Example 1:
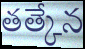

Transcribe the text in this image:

తత్కేన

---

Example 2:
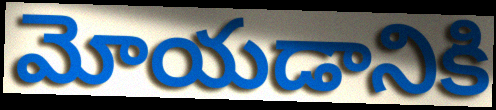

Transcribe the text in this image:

మోయడానికి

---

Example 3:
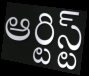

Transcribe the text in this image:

ఆర్టిస్ట్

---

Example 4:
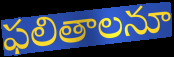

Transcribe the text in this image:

ఫలితాలనూ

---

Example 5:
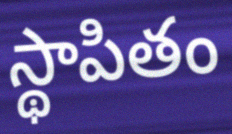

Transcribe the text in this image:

స్థాపితం